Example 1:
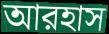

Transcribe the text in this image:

আরহাস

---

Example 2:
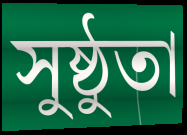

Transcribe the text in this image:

সুষ্ঠুতা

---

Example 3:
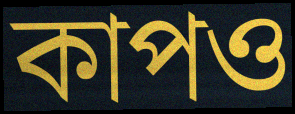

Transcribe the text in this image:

কাপও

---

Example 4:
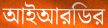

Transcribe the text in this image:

আইআরডির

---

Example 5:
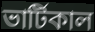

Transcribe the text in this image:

ভার্টিকাল